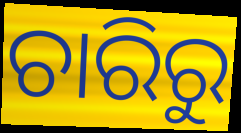
ଚାରିରୁ